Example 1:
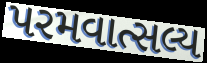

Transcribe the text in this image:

પરમવાત્સલ્ય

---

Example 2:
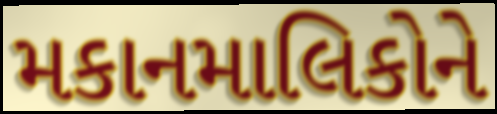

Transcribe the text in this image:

મકાનમાલિકોને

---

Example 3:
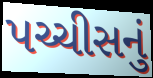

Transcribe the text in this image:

પચ્ચીસનું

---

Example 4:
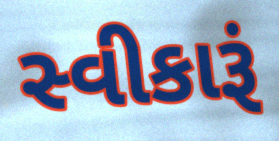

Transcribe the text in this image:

સ્વીકારૂં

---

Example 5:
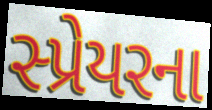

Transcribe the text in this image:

સ્પ્રેયરના